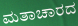
ಮತಾಚಾರದ